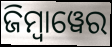
ଜିମ୍ୱାୱେର